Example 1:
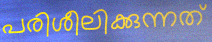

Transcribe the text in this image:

പരിശീലിക്കുന്നത്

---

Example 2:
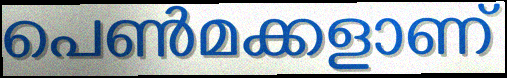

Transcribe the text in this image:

പെൺമക്കളാണ്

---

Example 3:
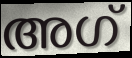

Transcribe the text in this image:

അഗ്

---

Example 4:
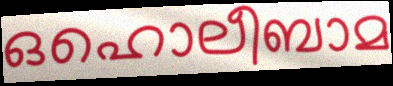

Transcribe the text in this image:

ഒഹൊലീബാമ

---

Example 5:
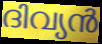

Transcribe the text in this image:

ദിവ്യൻ